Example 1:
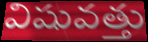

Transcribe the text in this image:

విషువత్తు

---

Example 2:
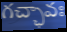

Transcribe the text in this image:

గచ్ఛావః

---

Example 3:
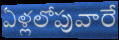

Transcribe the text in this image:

ఏళ్లలోపువారే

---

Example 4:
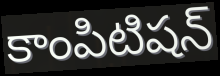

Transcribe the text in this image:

కాంపిటిషన్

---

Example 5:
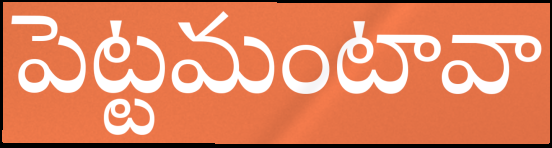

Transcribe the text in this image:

పెట్టమంటావా